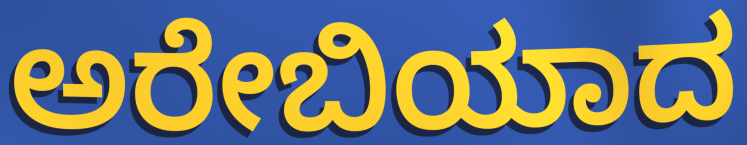
ಅರೇಬಿಯಾದ